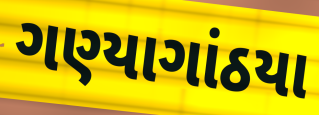
ગણ્યાગાંઠયા